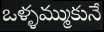
ఒళ్ళమ్ముకునే